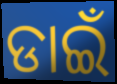
ଡାଇଁ